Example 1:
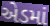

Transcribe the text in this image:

એડમાં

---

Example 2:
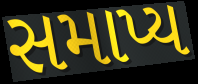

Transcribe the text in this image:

સમાપ્ય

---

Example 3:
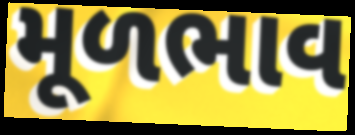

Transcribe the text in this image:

મૂળભાવ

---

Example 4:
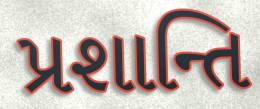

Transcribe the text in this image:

પ્રશાન્તિ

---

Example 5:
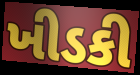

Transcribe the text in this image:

ખીડકી